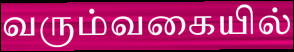
வரும்வகையில்